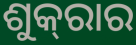
ଶୁକ୍‌ରାର